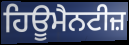
ਹਿਊਮੈਨਟੀਜ਼